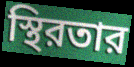
স্থিরতার